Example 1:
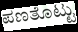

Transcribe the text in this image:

ಪಣತೊಟ್ಟು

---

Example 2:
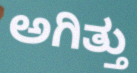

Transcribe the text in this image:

ಅಗಿತ್ತು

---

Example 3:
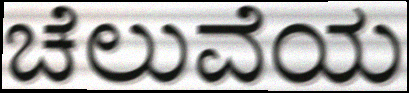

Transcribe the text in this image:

ಚೆಲುವೆಯ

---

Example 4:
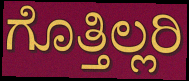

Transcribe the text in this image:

ಗೊತ್ತಿಲ್ಲರಿ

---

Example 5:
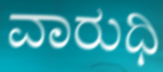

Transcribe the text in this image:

ವಾರುಧಿ